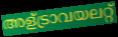
അള്ട്രാവയലറ്റ്